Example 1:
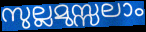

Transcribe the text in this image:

സുല്ലമുസ്സലാം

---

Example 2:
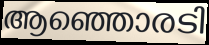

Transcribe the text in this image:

ആഞ്ഞൊരടി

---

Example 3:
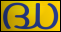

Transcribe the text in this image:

ദ്ധ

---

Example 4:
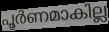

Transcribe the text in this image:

പൂർണമാകില്ല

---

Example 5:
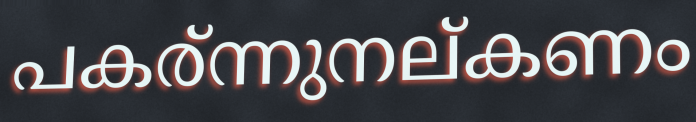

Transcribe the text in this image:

പകര്ന്നുനല്കണം